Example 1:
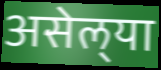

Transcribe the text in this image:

असेल्या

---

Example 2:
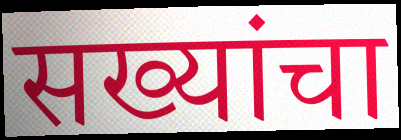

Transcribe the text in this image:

सख्यांचा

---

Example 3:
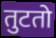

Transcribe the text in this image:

तुटतो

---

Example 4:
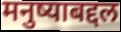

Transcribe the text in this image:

मनुष्याबद्दल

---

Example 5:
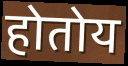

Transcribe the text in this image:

होतोय